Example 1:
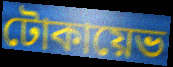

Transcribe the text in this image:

টোকায়েভ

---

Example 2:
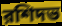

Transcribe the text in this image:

রশিদভ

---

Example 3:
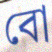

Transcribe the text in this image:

বো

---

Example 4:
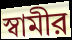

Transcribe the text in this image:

স্বামীর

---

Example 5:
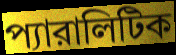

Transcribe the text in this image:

প্যারালিটিক